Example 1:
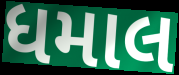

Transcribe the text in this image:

ધમાલ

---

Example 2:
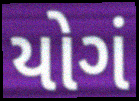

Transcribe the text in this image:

યોગં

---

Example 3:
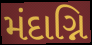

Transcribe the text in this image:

મંદાગ્નિ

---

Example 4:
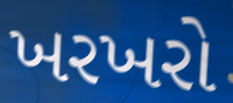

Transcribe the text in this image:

ખરખરો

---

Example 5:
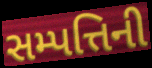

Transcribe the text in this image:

સમ્પત્તિની